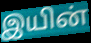
இயின்